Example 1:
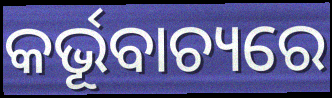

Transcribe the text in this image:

କର୍ଭୂବାଚ୍ୟରେ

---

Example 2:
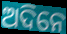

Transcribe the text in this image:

ଅଦିନେ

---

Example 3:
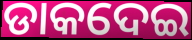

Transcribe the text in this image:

ଡାକଦେଇ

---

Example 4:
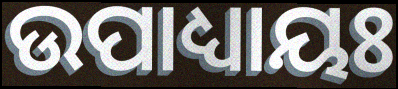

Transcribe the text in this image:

ଉପାଧ୍ୟାୟଃ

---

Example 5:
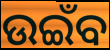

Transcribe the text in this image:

ଉଇଁବ